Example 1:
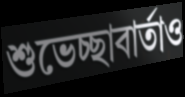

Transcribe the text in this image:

শুভেচ্ছাবার্তাও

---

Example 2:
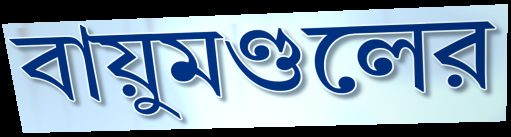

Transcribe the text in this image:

বায়ুমণ্ডলের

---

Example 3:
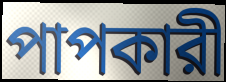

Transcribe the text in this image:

পাপকারী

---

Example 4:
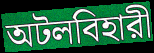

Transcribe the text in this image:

অটলবিহারী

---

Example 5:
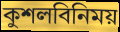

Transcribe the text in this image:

কুশলবিনিময়